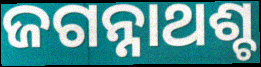
ଜଗନ୍ନାଥଶ୍ଚ